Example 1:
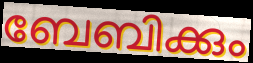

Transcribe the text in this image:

ബേബിക്കും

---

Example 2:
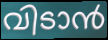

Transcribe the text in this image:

വിടാൻ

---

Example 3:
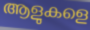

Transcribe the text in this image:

ആളുകളെ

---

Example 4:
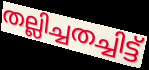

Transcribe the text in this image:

തല്ലിച്ചതച്ചിട്ട്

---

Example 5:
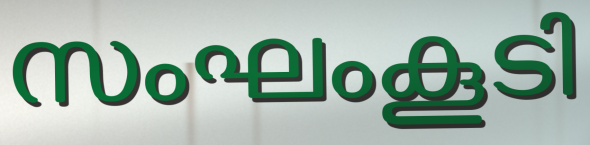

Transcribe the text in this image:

സംഘംകൂടി